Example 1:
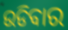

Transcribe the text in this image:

ଉଡିବାର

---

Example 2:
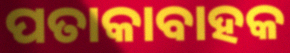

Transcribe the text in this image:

ପତାକାବାହକ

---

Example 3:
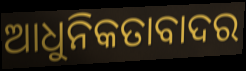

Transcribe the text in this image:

ଆଧୁନିକତାବାଦର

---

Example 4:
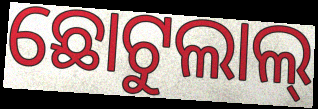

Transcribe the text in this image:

ଛୋଟୁଲାଲ୍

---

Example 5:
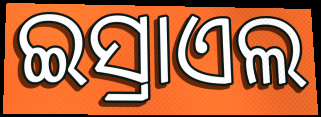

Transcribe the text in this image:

ଇସ୍ରାଏଲ